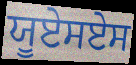
ਯੂਏਸਏਸ